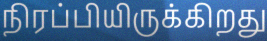
நிரப்பியிருக்கிறது